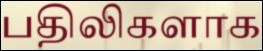
பதிலிகளாக